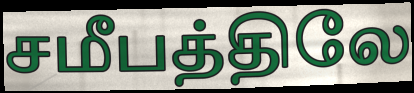
சமீபத்திலே